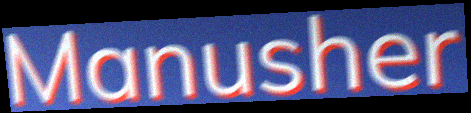
Manusher